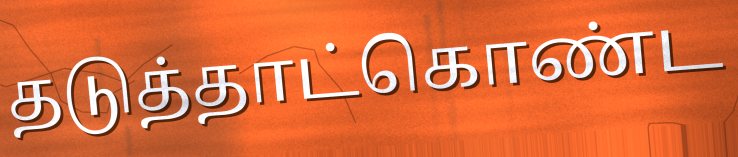
தடுத்தாட்கொண்ட